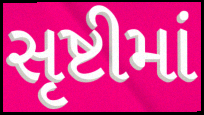
સૃષ્ટીમાં